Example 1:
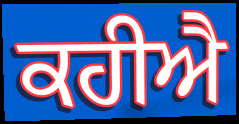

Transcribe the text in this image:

ਕਹੀਐ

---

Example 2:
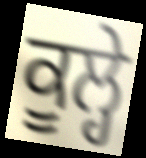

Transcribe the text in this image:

ਕੂਲ੍ਹੇ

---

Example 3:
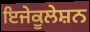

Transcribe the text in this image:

ਇਜੇਕੂਲੇਸ਼ਨ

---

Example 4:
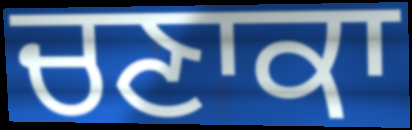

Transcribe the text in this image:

ਚਣਾਕਾ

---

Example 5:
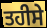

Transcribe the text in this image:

ਤਹੀਸੇ